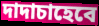
দাদাচাহেবে